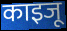
काइजू